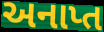
અનાપ્ત